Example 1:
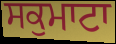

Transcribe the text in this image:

ਸਕੁਮਾਟਾ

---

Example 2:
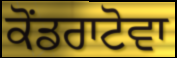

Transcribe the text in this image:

ਕੋਂਡਰਾਟੋਵਾ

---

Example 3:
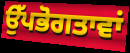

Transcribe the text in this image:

ਉੱਪਭੋਗਤਾਵਾਂ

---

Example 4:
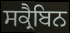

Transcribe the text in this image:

ਸਕ੍ਰੈਬਿਨ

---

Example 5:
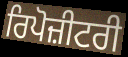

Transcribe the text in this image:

ਰਿਪੋਜ਼ੀਟਰੀ